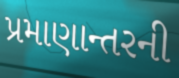
પ્રમાણાન્તરની